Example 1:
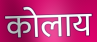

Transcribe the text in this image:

कोलाय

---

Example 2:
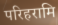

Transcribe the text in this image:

परिहरामि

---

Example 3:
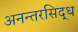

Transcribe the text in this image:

अनन्तरसिद्ध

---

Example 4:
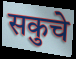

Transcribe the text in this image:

सकुचे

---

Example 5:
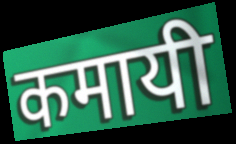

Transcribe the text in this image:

कमायी